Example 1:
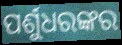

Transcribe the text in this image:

ପର୍ଶୁଧରଙ୍କର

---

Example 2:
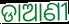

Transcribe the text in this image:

ଡାଆଣୀ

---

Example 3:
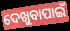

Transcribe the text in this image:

ଦେଖୁବାପାଇଁ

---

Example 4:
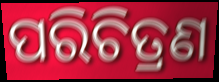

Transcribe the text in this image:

ପରିଚିତ୍ରଣ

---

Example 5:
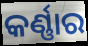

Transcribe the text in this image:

କର୍ଣ୍ଣାର